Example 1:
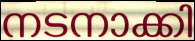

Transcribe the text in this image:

നടനാക്കി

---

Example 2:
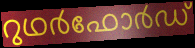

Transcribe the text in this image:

റുഥർഫോർഡ്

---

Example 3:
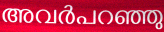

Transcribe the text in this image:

അവർപറഞ്ഞു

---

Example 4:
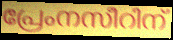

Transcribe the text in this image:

പ്രേംനസീറിന്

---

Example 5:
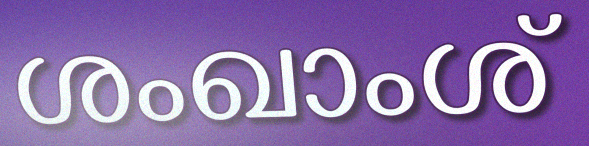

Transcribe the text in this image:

ശംഖാംശ്